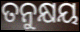
ତନୁକ୍ଷୟ